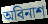
অবিনাশ